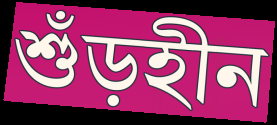
শুঁড়হীন